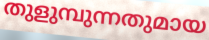
തുളുമ്പുന്നതുമായ